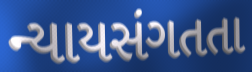
ન્યાયસંગતતા